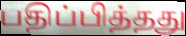
பதிப்பித்தது